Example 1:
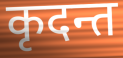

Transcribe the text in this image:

कृदन्त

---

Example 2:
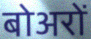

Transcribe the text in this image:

बोअरों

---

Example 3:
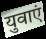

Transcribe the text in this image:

युवाएं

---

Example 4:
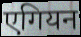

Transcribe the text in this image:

एगियन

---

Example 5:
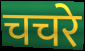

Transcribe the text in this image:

चचरे